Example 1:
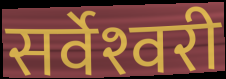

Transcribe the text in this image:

सर्वेश्वरी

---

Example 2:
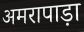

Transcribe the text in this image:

अमरापाड़ा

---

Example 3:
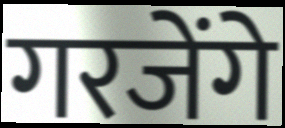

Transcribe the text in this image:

गरजेंगे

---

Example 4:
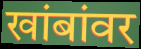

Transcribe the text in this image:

खांबांवर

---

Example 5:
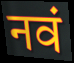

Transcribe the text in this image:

नवं